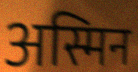
अस्मिन